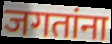
जगतांना